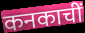
कनकाचीं